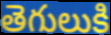
తెగులుకి